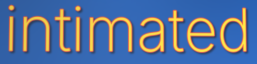
intimated